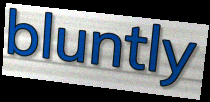
bluntly